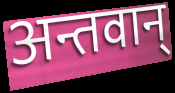
अन्तवान्